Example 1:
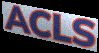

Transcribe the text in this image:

ACLS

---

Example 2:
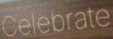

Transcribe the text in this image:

Celebrate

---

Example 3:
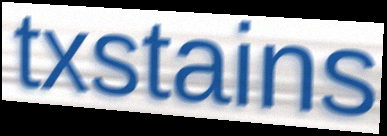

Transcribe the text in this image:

txstains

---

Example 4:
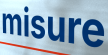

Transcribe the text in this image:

misure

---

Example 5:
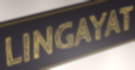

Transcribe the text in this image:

LINGAYAT